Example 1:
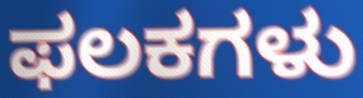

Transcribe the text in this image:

ಫಲಕಗಳು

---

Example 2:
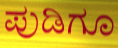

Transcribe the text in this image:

ಪುಡಿಗೂ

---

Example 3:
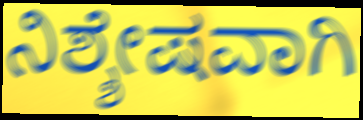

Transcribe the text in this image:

ನಿಶ್ಶೇಷವಾಗಿ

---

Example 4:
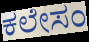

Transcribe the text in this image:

ಕಲೇಸಂ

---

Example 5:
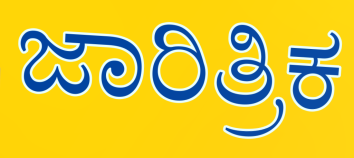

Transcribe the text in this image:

ಜಾರಿತ್ರಿಕ